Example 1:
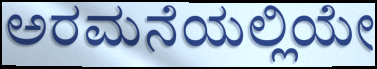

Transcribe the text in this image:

ಅರಮನೆಯಲ್ಲಿಯೇ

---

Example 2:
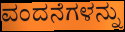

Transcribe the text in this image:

ವಂದನೆಗಳನ್ನು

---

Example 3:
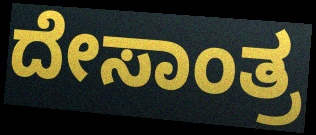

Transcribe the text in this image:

ದೇಸಾಂತ್ರ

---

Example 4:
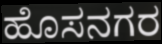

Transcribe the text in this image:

ಹೊಸನಗರ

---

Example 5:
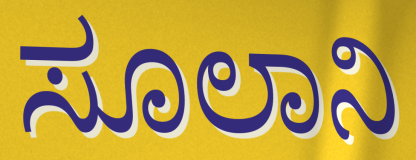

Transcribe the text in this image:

ಸೂಲಾನಿ